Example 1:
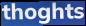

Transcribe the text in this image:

thoghts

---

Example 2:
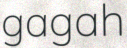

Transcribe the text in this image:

gagah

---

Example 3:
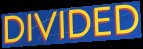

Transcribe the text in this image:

DIVIDED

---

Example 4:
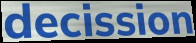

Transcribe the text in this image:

decission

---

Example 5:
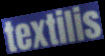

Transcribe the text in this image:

textilis